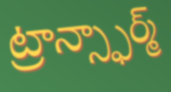
ట్రాన్స్ఫార్మ్